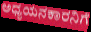
ಅಧ್ಯಯನಕಾರನಿಗೆ